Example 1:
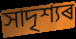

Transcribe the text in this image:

সাদৃশ্যৰ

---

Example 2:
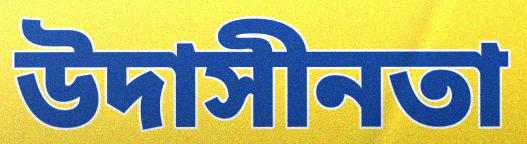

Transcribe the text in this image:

উদাসীনতা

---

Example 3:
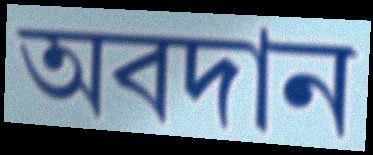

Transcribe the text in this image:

অবদান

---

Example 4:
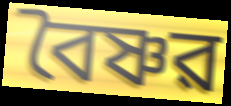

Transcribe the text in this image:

বৈষ্ণৱ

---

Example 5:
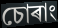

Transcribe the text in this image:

চোৰাং